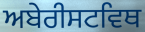
ਅਬੇਰੀਸਟਵਿਥ